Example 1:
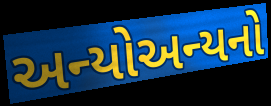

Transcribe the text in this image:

અન્યોઅન્યનો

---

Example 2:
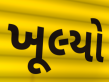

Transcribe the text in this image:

ખૂલ્યો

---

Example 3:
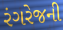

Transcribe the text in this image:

રંગરેજની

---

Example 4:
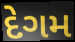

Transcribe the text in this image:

દેગમ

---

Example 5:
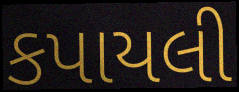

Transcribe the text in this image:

કપાયલી